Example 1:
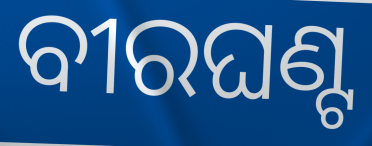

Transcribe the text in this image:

ବୀରଘଣ୍ଟ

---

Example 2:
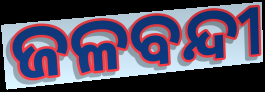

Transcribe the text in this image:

ଜଳବନ୍ଦୀ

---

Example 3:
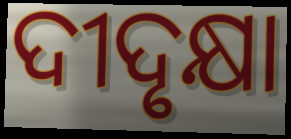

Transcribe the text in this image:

ଦୀଦୃକ୍ଷା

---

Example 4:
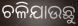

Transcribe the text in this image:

ଚଳିଯାଉଛୁ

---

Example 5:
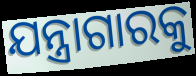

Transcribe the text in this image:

ଯନ୍ତ୍ରାଗାରକୁ